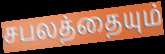
சபலத்தையும்